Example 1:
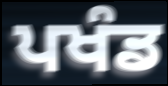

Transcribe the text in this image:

ਪਖੰਡ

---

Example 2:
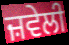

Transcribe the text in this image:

ਜ਼ਵੇਲੀ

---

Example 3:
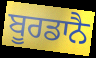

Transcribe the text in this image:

ਬੂਰਡਾਨੈ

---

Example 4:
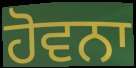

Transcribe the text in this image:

ਹੋਵਨਾ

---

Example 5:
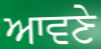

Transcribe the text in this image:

ਆਵਣੇ